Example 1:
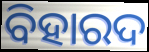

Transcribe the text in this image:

ବିହାରଦ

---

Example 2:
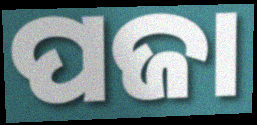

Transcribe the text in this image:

ପଜା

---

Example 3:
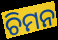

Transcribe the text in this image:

ଚିମନ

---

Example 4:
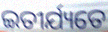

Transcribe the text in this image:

ଇତୀର୍ଯ୍ୟତେ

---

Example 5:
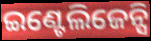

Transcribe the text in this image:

ଇଣ୍ଟେଲିଜେନ୍ସି